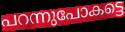
പറന്നുപോകട്ടെ